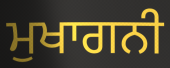
ਮੁਖਾਗਨੀ